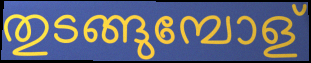
തുടങ്ങുമ്പോള്